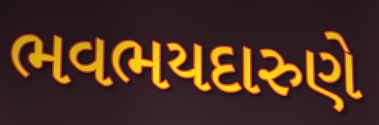
ભવભયદારુણે